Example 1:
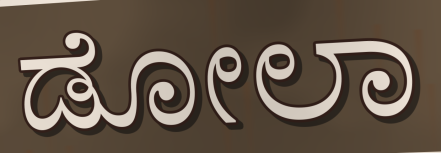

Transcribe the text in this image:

ಡೋಲಾ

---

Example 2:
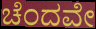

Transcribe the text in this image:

ಚೆಂದವೇ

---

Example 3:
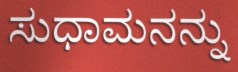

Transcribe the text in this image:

ಸುಧಾಮನನ್ನು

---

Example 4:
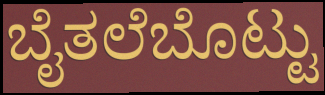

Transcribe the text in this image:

ಬೈತಲೆಬೊಟ್ಟು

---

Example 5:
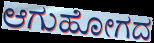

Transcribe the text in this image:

ಆಗುಹೋಗದ